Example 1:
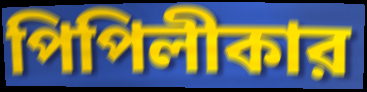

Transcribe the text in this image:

পিপিলীকার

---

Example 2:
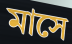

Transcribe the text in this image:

মাসে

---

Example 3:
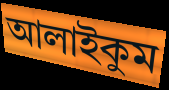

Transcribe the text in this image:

আলাইকুম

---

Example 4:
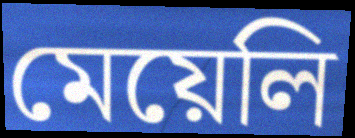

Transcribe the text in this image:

মেয়েলি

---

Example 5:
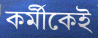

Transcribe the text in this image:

কর্মীকেই